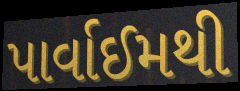
પાર્વાઈમથી